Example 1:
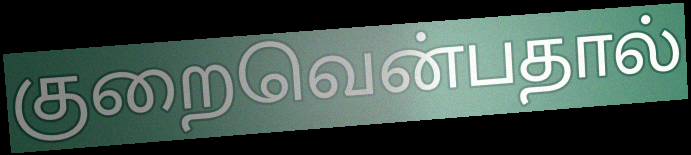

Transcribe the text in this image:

குறைவென்பதால்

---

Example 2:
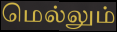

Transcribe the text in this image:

மெல்லும்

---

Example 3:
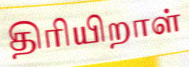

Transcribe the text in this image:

திரியிறாள்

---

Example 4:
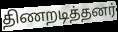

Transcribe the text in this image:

திணறடித்தனர்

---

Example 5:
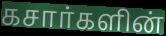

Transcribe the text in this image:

கசார்களின்